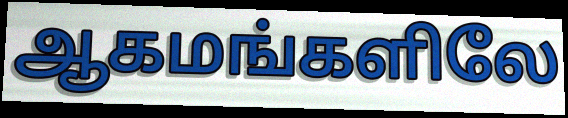
ஆகமங்களிலே